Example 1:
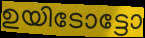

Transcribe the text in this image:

ഉയിടോട്ടോ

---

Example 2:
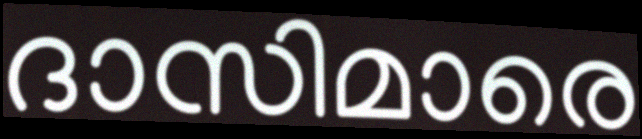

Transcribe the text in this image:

ദാസിമാരെ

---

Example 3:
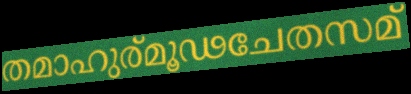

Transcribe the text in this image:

തമാഹുര്മൂഢചേതസമ്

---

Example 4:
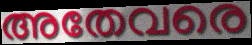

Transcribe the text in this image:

അതേവരെ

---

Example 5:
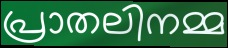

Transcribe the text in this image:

പ്രാതലിനമ്മ